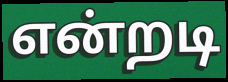
என்றடி